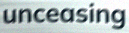
unceasing